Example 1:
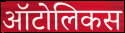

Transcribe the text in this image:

ऑटोलिकस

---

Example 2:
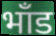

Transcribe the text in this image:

भाँड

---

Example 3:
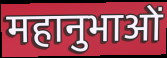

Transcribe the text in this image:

महानुभाओं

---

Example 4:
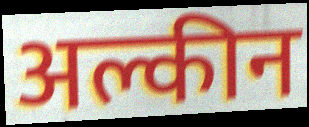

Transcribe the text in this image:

अल्कीन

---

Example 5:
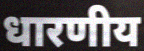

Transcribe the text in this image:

धारणीय